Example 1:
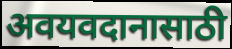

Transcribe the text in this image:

अवयवदानासाठी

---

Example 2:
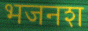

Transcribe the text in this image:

भजनश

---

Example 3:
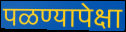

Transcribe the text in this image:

पळण्यापेक्षा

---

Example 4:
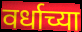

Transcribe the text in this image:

वर्धाच्या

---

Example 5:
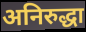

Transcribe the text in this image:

अनिरुद्धा